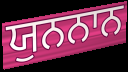
ਯੁਨਨਾਨ